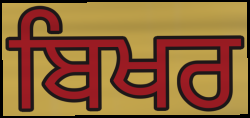
ਬਿਖਰ